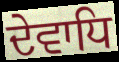
ਦੇਵਾਧਿ